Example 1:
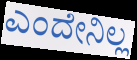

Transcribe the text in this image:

ಎಂದೇನಿಲ್ಲ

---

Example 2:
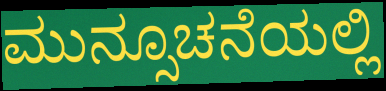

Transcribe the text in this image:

ಮುನ್ಸೂಚನೆಯಲ್ಲಿ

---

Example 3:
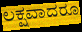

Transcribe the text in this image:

ಲಕ್ಷವಾದರೂ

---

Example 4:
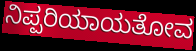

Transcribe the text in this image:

ನಿಪ್ಪರಿಯಾಯತೋವ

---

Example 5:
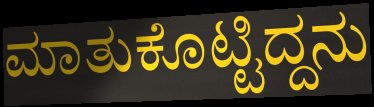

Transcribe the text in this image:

ಮಾತುಕೊಟ್ಟಿದ್ದನು